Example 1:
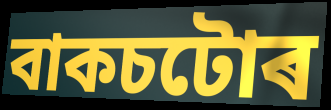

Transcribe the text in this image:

বাকচটোৰ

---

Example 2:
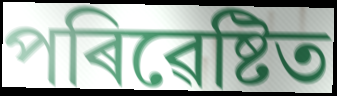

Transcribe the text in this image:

পৰিৱেষ্টিত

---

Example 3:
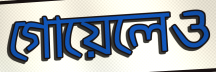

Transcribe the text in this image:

গোয়েলেও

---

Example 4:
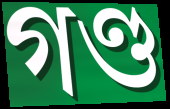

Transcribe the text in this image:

গণ্ড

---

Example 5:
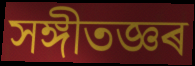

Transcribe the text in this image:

সঙ্গীতজ্ঞৰ